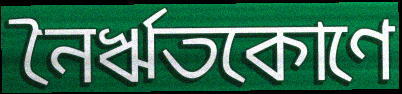
নৈর্ঋতকোণে